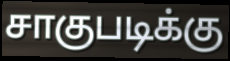
சாகுபடிக்கு